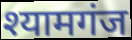
श्यामगंज